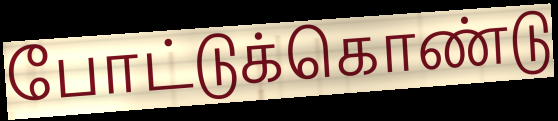
போட்டுக்கொண்டு